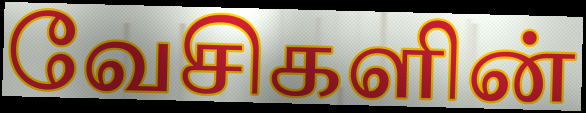
வேசிகளின்